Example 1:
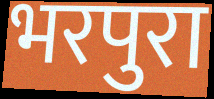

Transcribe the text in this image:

भरपुरा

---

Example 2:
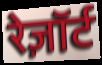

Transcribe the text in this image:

रेज़ॉर्ट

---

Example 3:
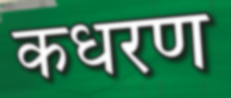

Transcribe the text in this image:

कधरण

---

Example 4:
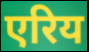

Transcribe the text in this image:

एरिय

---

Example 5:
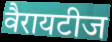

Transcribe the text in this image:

वैरायटीज